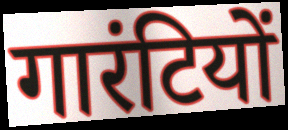
गारंटियों